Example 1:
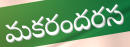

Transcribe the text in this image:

మకరందరస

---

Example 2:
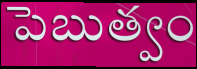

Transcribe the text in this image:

పెబుత్వం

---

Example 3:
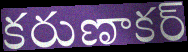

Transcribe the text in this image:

కరుణాకర్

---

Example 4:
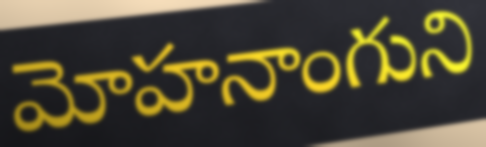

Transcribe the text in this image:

మోహనాంగుని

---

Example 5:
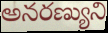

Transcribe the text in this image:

అనరణ్యుని